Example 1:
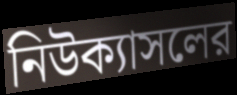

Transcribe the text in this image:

নিউক্যাসলের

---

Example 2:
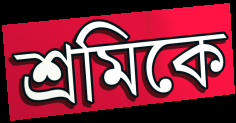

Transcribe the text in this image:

শ্রমিকে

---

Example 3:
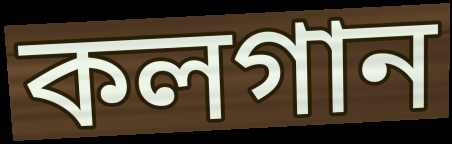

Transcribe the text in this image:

কলগান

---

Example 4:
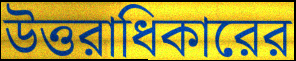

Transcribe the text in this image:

উত্তরাধিকারের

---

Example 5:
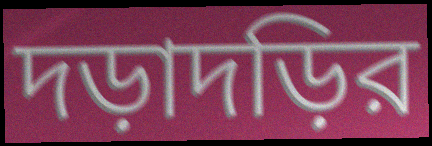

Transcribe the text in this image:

দড়াদড়ির